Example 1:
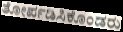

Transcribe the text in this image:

ತೋರ್ಪಡಿಸಿಕೊಂಡರು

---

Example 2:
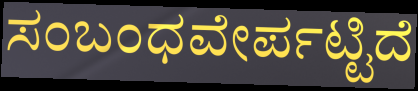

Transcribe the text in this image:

ಸಂಬಂಧವೇರ್ಪಟ್ಟಿದೆ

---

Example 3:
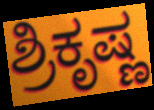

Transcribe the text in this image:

ಶ್ರಿಕೃಷ್ಣ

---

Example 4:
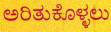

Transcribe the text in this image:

ಅರಿತುಕೊಳ್ಳಲು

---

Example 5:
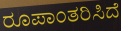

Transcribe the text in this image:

ರೂಪಾಂತರಿಸಿದೆ